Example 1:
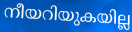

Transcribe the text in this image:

നീയറിയുകയില്ല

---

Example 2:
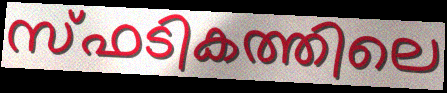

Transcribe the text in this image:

സ്ഫടികത്തിലെ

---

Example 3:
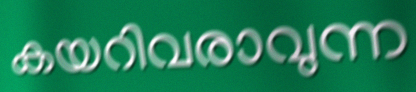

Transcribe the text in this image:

കയറിവരാവുന്ന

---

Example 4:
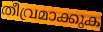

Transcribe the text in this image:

തീവ്രമാക്കുക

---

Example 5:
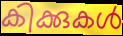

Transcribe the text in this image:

കിക്കുകൾ